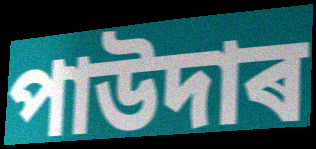
পাউদাৰ